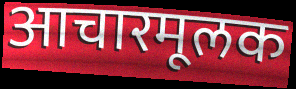
आचारमूलक